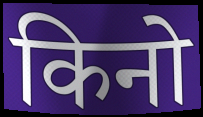
किनो